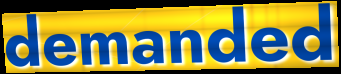
demanded